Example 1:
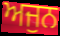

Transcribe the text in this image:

ਅਜੁਨ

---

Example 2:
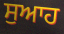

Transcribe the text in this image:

ਸੁਆਹ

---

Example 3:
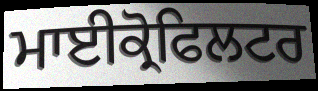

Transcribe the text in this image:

ਮਾਈਕ੍ਰੋਫਿਲਟਰ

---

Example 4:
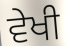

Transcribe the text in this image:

ਵੇਖੀ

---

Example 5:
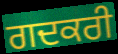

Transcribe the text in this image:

ਗਦਕਰੀ